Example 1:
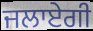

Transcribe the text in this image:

ਜਲਾਏਗੀ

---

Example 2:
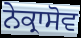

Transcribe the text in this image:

ਨੇਕ੍ਰਾਸੋਵ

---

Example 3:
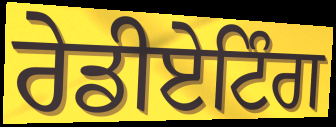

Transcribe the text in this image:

ਰੇਡੀਏਟਿੰਗ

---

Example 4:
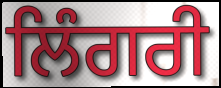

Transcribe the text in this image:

ਲਿੰਗਰੀ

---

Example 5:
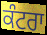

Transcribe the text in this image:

ਕੰਟਰਾ